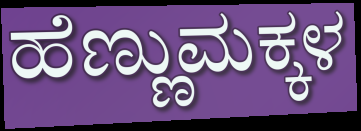
ಹೆಣ್ಣುಮಕ್ಕಳ